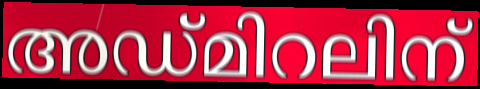
അഡ്മിറലിന്